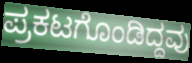
ಪ್ರಕಟಗೊಂಡಿದ್ದವು